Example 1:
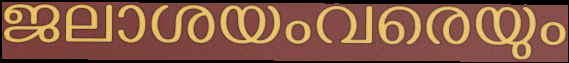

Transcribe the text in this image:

ജലാശയംവരെയും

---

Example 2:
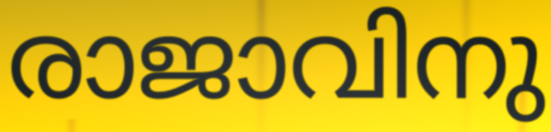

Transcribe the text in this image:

രാജാവിനു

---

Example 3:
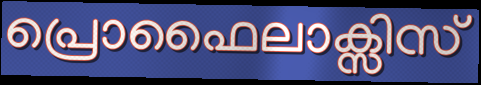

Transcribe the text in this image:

പ്രൊഫൈലാക്സിസ്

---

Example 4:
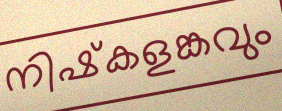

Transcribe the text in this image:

നിഷ്‌കളങ്കവും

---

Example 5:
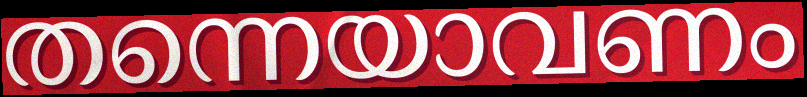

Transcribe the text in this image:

തന്നെയാവണം